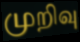
முறிவு